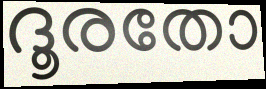
ദൂരതോ